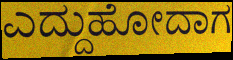
ಎದ್ದುಹೋದಾಗ